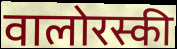
वालोरस्की